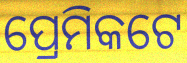
ପ୍ରେମିକଟେ